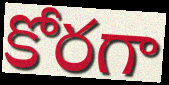
కోరగా